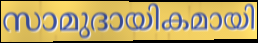
സാമുദായികമായി